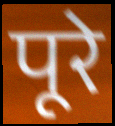
पूरे